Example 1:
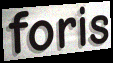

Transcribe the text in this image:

foris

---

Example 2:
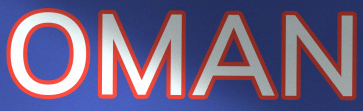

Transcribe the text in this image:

OMAN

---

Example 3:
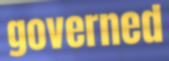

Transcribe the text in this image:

governed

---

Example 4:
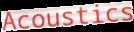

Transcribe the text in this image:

Acoustics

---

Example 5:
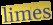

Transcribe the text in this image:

limes